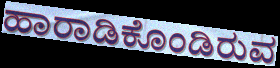
ಹಾರಾಡಿಕೊಂಡಿರುವ